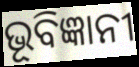
ଭୂବିଜ୍ଞାନୀ